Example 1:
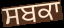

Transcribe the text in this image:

ਸਬਕਾ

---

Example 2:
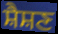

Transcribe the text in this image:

ਸ਼ੈਸ਼ਣ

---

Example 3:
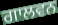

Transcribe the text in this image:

ਗਾਲਵਨ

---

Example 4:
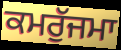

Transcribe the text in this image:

ਕਮਰੁੱਜਮਾ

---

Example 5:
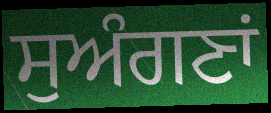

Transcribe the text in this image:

ਸੁਅੰਗਣਾਂ